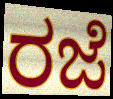
ರಜೆ